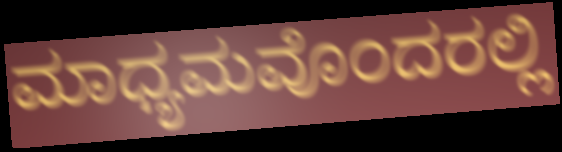
ಮಾಧ್ಯಮವೊಂದರಲ್ಲಿ